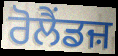
ਰੋਲੈਂਡਜ਼